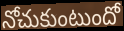
నోచుకుంటుందో